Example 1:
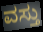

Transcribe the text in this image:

ವಸ್ತು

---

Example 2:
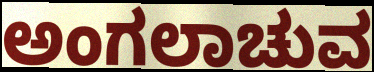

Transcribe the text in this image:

ಅಂಗಲಾಚುವ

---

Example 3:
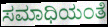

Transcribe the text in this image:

ಸಮಾಧಿಯಂತೆ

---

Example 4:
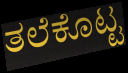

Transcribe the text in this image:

ತಲೆಕೊಟ್ಟ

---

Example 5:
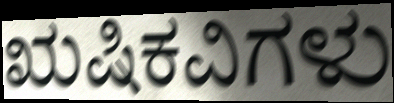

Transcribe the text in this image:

ಋಷಿಕವಿಗಳು